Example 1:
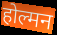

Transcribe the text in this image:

होल्मन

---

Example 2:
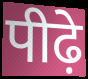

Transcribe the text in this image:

पीढ़े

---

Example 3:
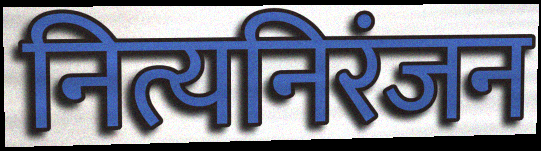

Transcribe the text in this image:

नित्यनिरंजन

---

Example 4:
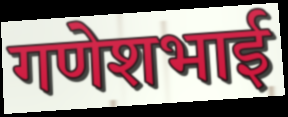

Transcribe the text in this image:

गणेशभाई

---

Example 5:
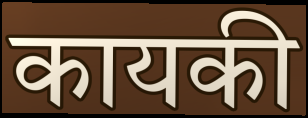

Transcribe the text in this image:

कायकी